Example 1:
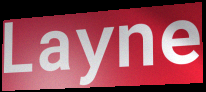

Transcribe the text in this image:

Layne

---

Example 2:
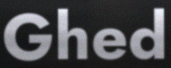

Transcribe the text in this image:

Ghed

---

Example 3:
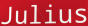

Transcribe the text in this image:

Julius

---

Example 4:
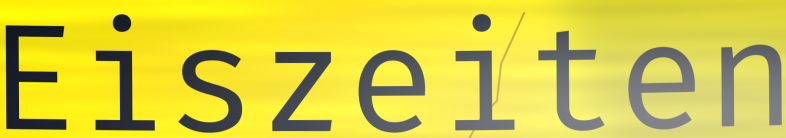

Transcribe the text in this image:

Eiszeiten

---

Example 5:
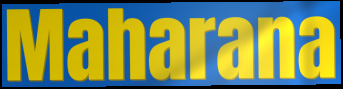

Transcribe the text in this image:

Maharana